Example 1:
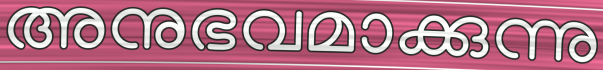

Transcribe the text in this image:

അനുഭവമാക്കുന്നു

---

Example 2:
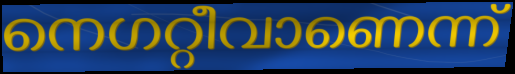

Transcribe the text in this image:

നെഗറ്റീവാണെന്ന്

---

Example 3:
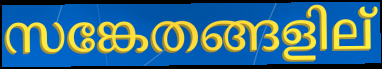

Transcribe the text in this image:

സങ്കേതങ്ങളില്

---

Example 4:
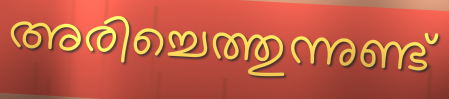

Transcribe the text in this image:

അരിച്ചെത്തുന്നുണ്ട്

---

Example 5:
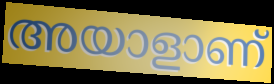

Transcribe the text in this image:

അയാളാണ്